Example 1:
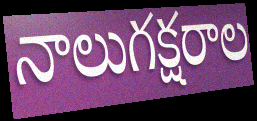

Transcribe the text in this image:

నాలుగక్షరాల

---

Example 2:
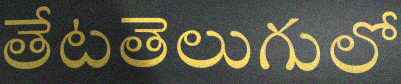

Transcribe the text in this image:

తేటతెలుగులో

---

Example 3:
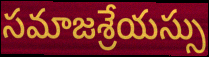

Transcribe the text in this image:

సమాజశ్రేయస్సు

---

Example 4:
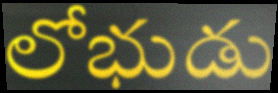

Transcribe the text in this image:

లోభుడు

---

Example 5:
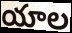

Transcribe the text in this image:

యాల